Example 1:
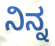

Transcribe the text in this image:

ನಿನ್ನ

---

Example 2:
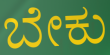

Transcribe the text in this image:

ಬೇಕು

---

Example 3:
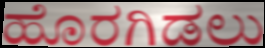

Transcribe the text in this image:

ಹೊರಗಿಡಲು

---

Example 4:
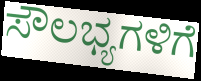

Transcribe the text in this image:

ಸೌಲಭ್ಯಗಳಿಗೆ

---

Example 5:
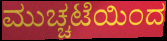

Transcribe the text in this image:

ಮುಚ್ಚಟೆಯಿಂದ